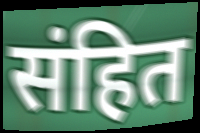
संहित